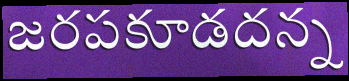
జరపకూడదన్న